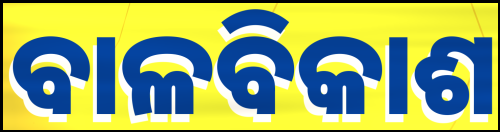
ବାଳବିକାଶ